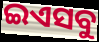
ଇଏସବୁ